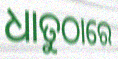
ଧାତୁଠାରେ